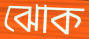
ঝোক